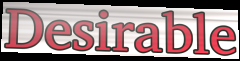
Desirable